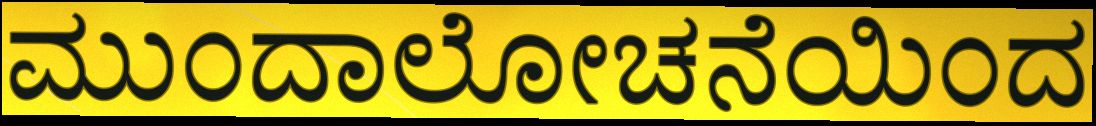
ಮುಂದಾಲೋಚನೆಯಿಂದ